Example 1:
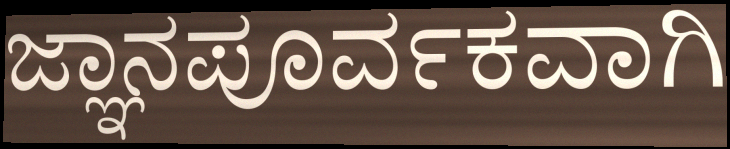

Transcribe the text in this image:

ಜ್ಞಾನಪೂರ್ವಕವಾಗಿ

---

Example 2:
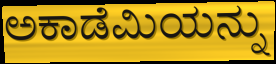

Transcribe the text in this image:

ಅಕಾಡೆಮಿಯನ್ನು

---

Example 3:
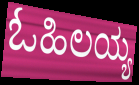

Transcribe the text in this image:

ಓಹಿಲಯ್ಯ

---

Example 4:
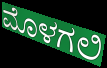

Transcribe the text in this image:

ಮೊಳಗಲಿ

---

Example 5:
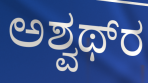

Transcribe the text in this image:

ಅಶ್ವಥ್‌ರ